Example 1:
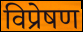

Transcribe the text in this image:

विप्रेषण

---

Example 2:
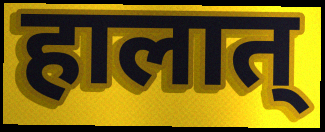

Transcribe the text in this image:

हालात्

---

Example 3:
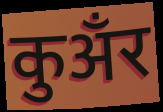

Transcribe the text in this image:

कुअँर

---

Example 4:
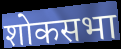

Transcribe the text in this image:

शोकसभा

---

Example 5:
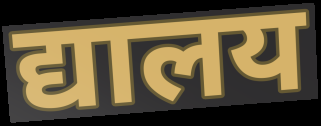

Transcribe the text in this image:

द्यालय